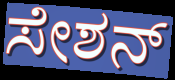
ಸೇಶನ್